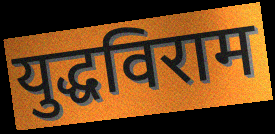
युद्धविराम